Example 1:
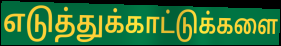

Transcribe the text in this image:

எடுத்துக்காட்டுக்களை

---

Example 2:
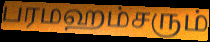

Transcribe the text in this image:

பரமஹம்சரும்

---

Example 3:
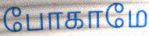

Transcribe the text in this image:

போகாமே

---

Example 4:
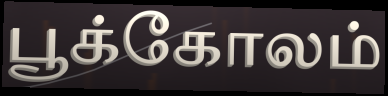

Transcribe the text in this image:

பூக்கோலம்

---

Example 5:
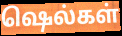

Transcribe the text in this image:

ஷெல்கள்